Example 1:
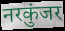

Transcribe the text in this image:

नरकुंजर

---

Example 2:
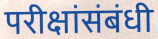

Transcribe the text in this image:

परीक्षांसंबंधी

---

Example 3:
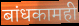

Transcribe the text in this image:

बांधकामही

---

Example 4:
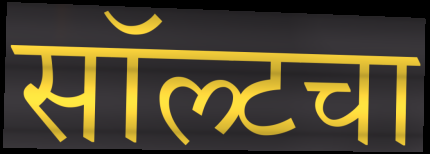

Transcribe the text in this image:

सॉल्टचा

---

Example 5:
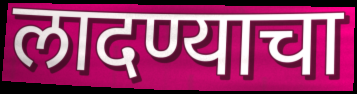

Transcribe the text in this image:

लादण्याचा